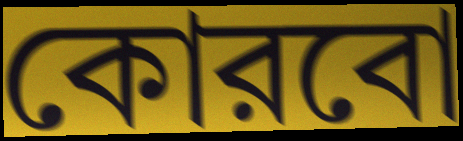
কোরবো